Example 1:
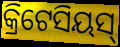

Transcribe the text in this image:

କ୍ରିଟେସିୟସ୍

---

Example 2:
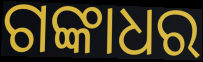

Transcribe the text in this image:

ଗଙ୍କାଧର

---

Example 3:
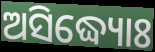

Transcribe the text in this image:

ଅସିଦ୍ଧ୍ୟୋଃ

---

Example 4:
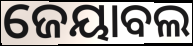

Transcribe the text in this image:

ଜେୟାବଲ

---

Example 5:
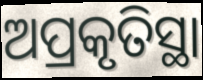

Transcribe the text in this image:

ଅପ୍ରକୃତିସ୍ଥା